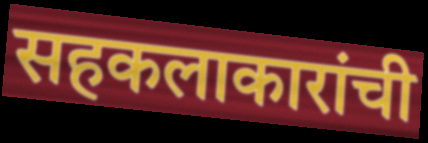
सहकलाकारांची